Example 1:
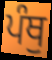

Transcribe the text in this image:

ਪੰਥੁ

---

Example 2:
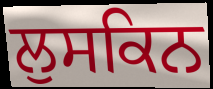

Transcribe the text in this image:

ਲੁਸਕਿਨ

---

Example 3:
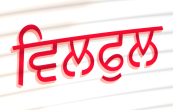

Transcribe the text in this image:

ਵਿਲਫੁਲ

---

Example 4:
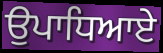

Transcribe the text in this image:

ਉਪਾਧਿਆਏ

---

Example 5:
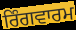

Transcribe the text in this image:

ਰਿੰਗਵਾਰਮ